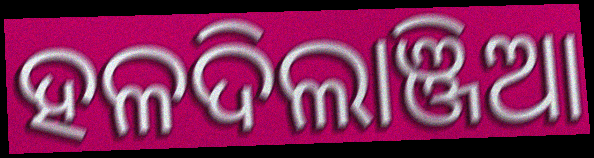
ହଳଦିଲାଞ୍ଜିଆ